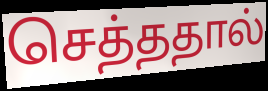
செத்ததால்